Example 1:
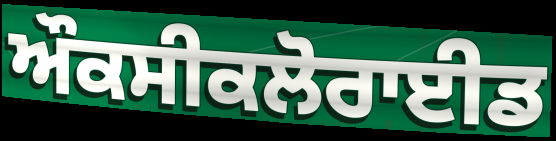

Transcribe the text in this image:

ਔਕਸੀਕਲੋਰਾਈਡ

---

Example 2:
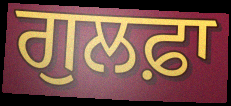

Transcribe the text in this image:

ਗੁਲਫ਼ਾ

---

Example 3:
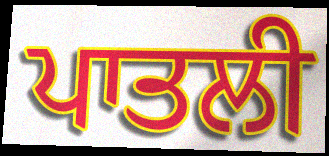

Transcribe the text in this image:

ਪਾਤਲੀ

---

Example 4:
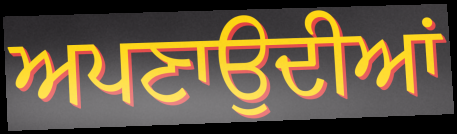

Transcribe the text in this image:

ਅਪਣਾਉਦੀਆਂ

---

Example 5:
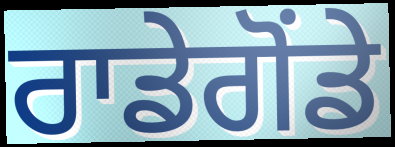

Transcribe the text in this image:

ਰਾਡੇਗੋਂਡੇ